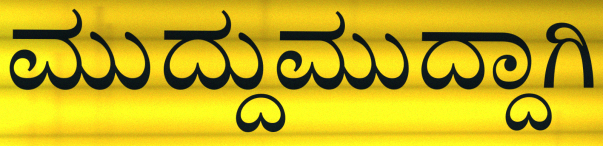
ಮುದ್ದುಮುದ್ದಾಗಿ